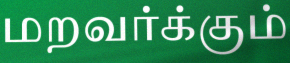
மறவர்க்கும்